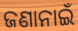
ଜଣାନାଇଁ